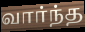
வார்ந்த